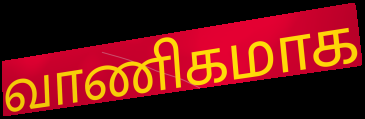
வாணிகமாக